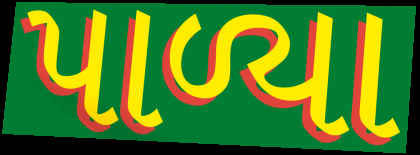
પાળ્યા